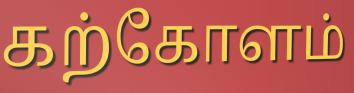
கற்கோளம்